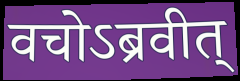
वचोऽब्रवीत्